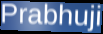
Prabhuji